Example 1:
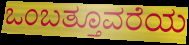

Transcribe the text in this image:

ಒಂಬತ್ತೂವರೆಯ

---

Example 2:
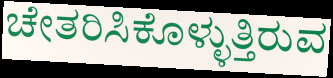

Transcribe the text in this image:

ಚೇತರಿಸಿಕೊಳ್ಳುತ್ತಿರುವ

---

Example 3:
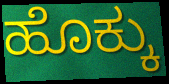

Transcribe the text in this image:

ಹೊಕ್ಕು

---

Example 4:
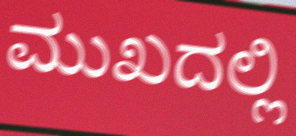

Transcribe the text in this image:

ಮುಖದಲ್ಲಿ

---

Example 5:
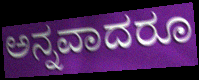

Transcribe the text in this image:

ಅನ್ನವಾದರೂ